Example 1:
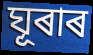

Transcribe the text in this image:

ঘূৰাৰ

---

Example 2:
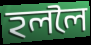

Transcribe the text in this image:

হললৈ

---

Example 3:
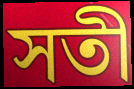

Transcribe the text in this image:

সতী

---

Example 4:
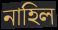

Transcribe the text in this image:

নাহিল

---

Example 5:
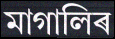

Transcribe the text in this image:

মাগালিৰ